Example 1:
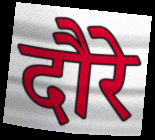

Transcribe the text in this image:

दौरे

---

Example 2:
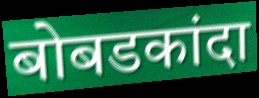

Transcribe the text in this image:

बोबडकांदा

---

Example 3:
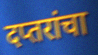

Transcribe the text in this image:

दप्तरांचा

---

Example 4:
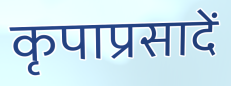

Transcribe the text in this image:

कृपाप्रसादें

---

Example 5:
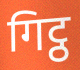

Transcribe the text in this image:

गिट्ठ